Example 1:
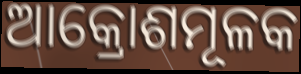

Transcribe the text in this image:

ଆକ୍ରୋଶମୂଳକ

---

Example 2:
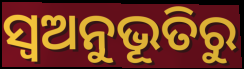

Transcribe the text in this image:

ସ୍ୱଅନୁଭୂତିରୁ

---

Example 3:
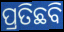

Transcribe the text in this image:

ପ୍ରତିଛବି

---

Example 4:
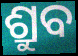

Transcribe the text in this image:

ଶ୍ରୁବ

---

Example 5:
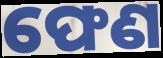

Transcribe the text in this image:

ଫେଣ